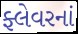
ફ્લેવરનાં